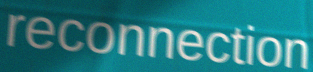
reconnection